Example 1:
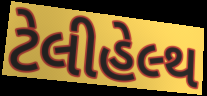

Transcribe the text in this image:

ટેલીહેલ્થ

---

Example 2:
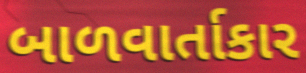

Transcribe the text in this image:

બાળવાર્તાકાર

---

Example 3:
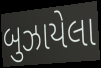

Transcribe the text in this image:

બુઝાયેલા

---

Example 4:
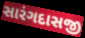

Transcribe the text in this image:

સારંગદાસજી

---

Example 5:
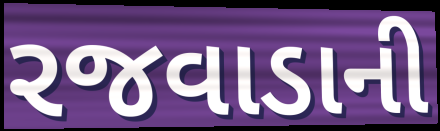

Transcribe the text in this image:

રજવાડાની